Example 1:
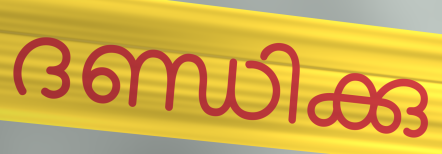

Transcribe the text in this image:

ദണ്ഡിക്കു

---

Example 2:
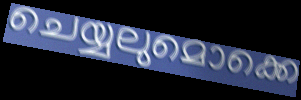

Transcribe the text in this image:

ചെയ്യലുമൊക്കെ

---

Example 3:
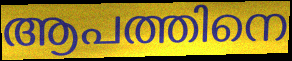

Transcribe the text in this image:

ആപത്തിനെ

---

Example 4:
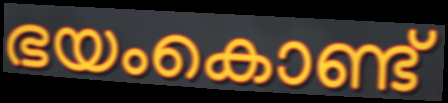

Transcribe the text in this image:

ഭയംകൊണ്ട്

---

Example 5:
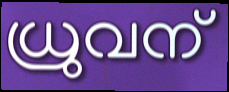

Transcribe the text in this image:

ധ്രുവന്